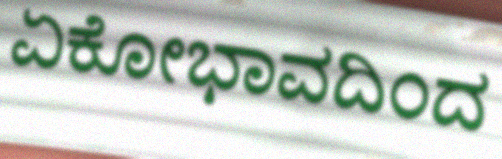
ಏಕೋಭಾವದಿಂದ